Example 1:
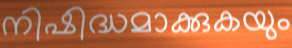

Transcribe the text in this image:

നിഷിദ്ധമാക്കുകയും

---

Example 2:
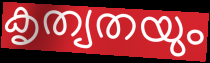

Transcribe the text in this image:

കൃത്യതയും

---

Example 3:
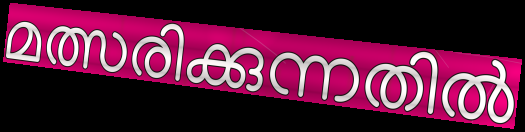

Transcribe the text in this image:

മത്സരിക്കുന്നതിൽ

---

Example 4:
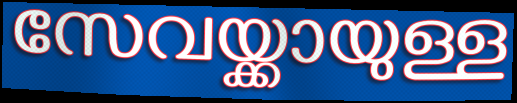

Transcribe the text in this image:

സേവയ്ക്കായുള്ള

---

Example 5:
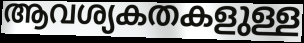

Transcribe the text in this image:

ആവശ്യകതകളുള്ള